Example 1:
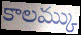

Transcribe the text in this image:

కాలమ్కు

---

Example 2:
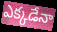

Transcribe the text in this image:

ఎక్కడేనా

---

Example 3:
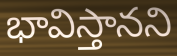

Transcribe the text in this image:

భావిస్తానని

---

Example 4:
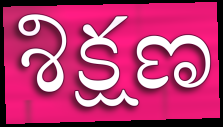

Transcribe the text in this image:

శిక్షణ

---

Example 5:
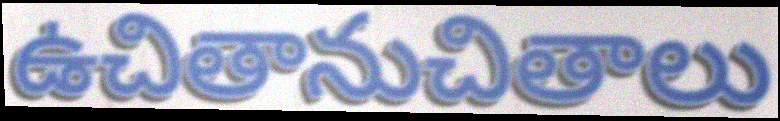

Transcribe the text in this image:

ఉచితానుచితాలు